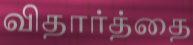
விதார்த்தை